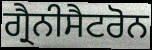
ਗ੍ਰੈਨੀਸੈਟਰੋਨ